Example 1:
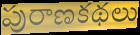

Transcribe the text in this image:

పురాణకథలు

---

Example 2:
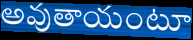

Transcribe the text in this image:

అవుతాయంటూ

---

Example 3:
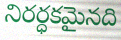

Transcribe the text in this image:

నిరర్ధకమైనది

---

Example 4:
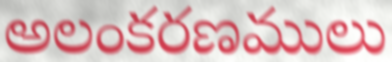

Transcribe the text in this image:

అలంకరణములు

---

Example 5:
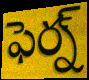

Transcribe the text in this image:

ఫెర్న్